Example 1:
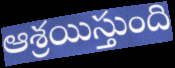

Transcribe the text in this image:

ఆశ్రయిస్తుంది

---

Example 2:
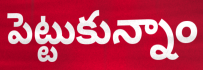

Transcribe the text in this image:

పెట్టుకున్నాం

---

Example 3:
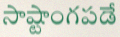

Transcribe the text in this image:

సాష్టాంగపడే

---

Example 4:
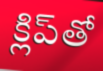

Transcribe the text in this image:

క్లిప్‌తో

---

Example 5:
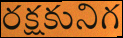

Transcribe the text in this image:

రక్షకునిగ